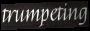
trumpeting